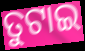
ତୁଟାଇ